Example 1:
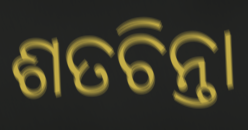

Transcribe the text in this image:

ଶତଚିନ୍ତା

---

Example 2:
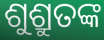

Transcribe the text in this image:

ଶୁଶ୍ରୁତଙ୍କ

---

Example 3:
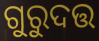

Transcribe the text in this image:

ଗୁରୁଦତ୍ତ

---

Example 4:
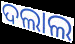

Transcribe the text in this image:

ଦଲାଲ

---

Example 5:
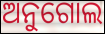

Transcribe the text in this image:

ଅନୁଗୋଲ